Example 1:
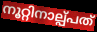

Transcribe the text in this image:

നൂറ്റിനാല്പ്പത്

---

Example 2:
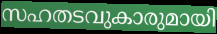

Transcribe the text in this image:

സഹതടവുകാരുമായി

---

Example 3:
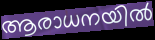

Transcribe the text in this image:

ആരാധനയിൽ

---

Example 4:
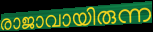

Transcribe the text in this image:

രാജാവായിരുന്ന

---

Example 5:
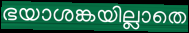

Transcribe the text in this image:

ഭയാശങ്കയില്ലാതെ